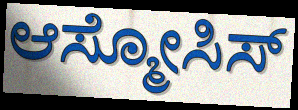
ಆಸ್ಮೋಸಿಸ್